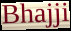
Bhajji